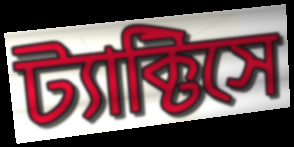
ট্যাক্টিসে